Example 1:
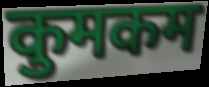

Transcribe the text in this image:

कुमकम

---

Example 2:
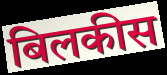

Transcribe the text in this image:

बिलकीस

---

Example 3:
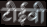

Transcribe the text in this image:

टीईवी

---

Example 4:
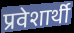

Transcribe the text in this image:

प्रवेशार्थी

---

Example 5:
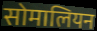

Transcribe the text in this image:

सोमालियन